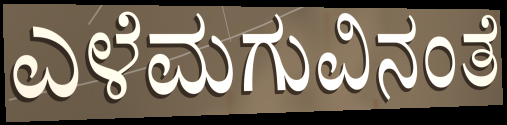
ಎಳೆಮಗುವಿನಂತೆ